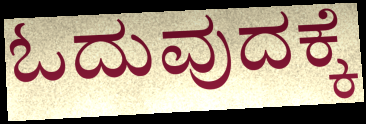
ಓದುವುದಕ್ಕೆ